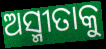
ଅସ୍ମୀତାକୁ